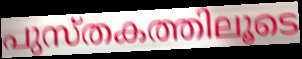
പുസ്തകത്തിലൂടെ